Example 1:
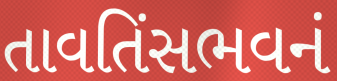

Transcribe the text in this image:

તાવતિંસભવનં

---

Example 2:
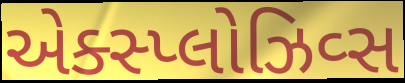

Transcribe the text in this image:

એક્સ્પ્લોઝિવ્સ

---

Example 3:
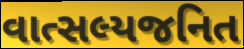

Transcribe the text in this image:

વાત્સલ્યજનિત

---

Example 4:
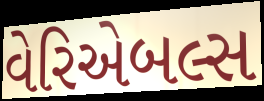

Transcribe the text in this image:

વેરિએબલ્સ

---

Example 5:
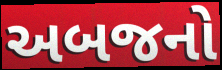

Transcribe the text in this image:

અબજનો